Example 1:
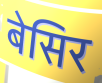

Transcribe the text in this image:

बेसिर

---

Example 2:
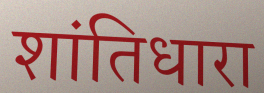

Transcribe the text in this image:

शांतिधारा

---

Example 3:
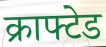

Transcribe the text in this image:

क्राफ्टेड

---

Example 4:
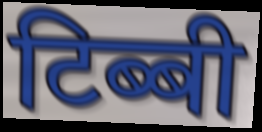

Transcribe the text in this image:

टिब्बी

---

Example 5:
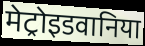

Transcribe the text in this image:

मेट्रोइडवानिया